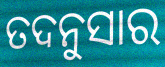
ତଦନୁସାର